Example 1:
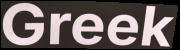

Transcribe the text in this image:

Greek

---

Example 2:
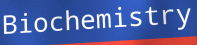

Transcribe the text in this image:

Biochemistry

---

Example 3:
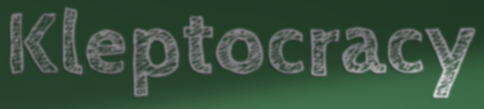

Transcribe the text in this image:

Kleptocracy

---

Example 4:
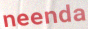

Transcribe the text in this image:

neenda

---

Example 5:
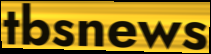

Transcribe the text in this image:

tbsnews